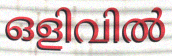
ഒളിവിൽ